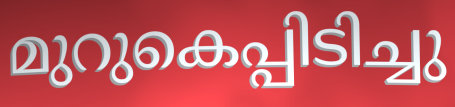
മുറുകെപ്പിടിച്ചു